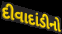
દીવાદાંડીનો